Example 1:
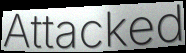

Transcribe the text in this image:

Attacked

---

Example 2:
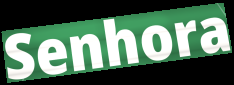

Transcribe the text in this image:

Senhora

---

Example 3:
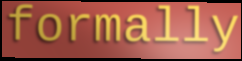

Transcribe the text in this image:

formally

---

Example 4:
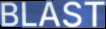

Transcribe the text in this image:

BLAST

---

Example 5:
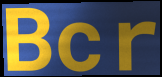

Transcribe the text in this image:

Bcr